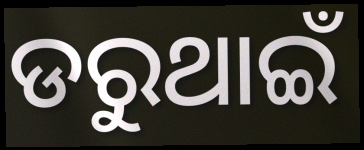
ଡରୁଥାଇଁ